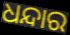
ଧନ୍ଦାର